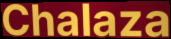
Chalaza